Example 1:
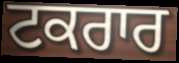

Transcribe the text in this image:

ਟਕਰਾਰ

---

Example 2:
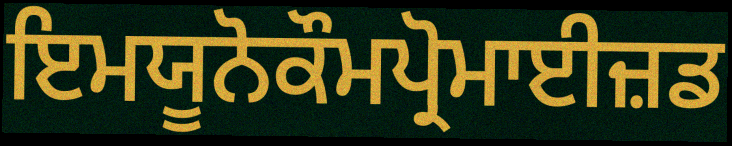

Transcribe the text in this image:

ਇਮਯੂਨੋਕੌਮਪ੍ਰੋਮਾਈਜ਼ਡ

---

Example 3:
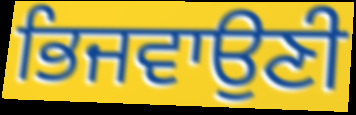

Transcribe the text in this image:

ਭਿਜਵਾਉਣੀ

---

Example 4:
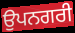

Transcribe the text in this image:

ਉਪਨਗਰੀ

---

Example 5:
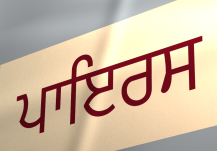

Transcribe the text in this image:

ਪਾਇਰਸ